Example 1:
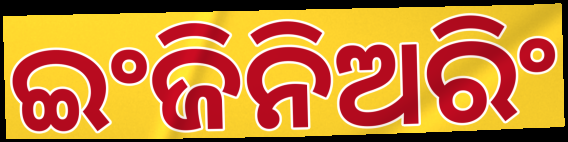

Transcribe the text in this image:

ଇଂଜିନିଅରିଂ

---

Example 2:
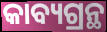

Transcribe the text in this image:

କାବ୍ୟଗ୍ରନ୍ଥ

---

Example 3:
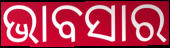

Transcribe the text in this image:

ଭାବସାର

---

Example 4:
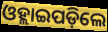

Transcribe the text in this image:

ଓହ୍ଲାଇପଡ଼ିଲେ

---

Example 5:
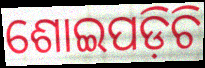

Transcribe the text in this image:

ଶୋଇପଡ଼ିଚି